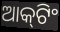
ଆକ୍‌ଟିଂ